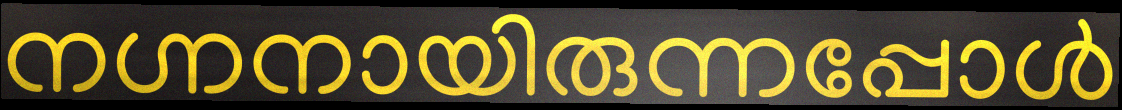
നഗ്നനായിരുന്നപ്പോൾ